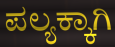
ಪಲ್ಯಕ್ಕಾಗಿ